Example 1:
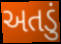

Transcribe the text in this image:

અતડું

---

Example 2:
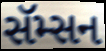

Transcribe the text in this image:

સૅમ્સન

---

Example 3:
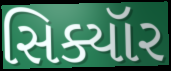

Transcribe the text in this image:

સિક્યૉર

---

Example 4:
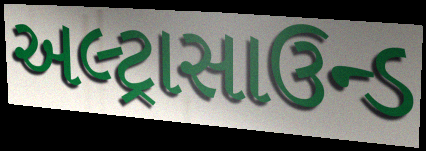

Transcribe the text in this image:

અલ્ટ્રાસાઉન્ડ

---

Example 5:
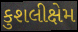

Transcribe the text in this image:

કુશલીક્ષેમ